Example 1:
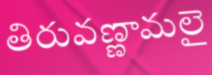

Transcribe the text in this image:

తిరువణ్ణామలై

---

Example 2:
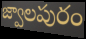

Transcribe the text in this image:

జ్వాలపురం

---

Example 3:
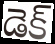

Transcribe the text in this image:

డెక్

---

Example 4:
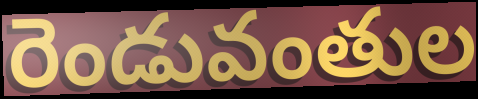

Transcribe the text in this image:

రెండువంతుల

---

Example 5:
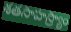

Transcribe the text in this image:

శతసాహస్ర్యాం